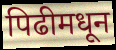
पिढीमधून